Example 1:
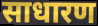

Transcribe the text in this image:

साधारण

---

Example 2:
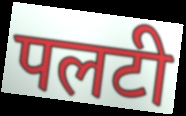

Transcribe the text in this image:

पलटी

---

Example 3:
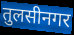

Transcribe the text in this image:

तुलसीनगर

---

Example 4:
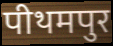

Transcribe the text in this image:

पीथमपुर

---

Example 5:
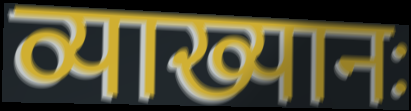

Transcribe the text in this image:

व्याख्यानः